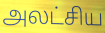
அலட்சிய